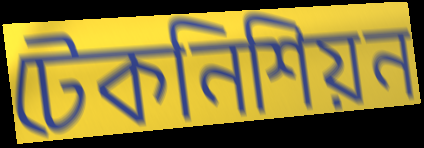
টেকনিশিয়ন